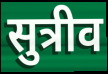
सुत्रीव